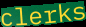
clerks